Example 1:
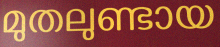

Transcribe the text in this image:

മുതലുണ്ടായ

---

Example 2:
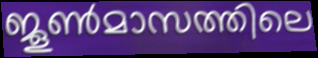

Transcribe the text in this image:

ജൂൺമാസത്തിലെ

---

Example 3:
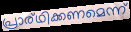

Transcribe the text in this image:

പ്രാര്ഥിക്കണമെന്ന്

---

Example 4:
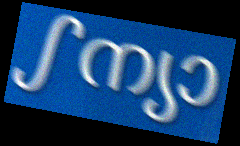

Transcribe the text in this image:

ഽന്യാ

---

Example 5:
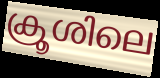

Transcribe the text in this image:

ക്രൂശിലെ